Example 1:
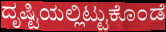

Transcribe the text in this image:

ದೃಷ್ಟಿಯಲ್ಲಿಟ್ಟುಕೊಂಡೆ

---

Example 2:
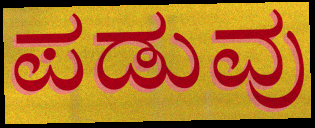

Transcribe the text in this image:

ಪಡುವು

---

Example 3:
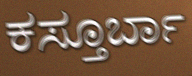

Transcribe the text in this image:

ಕಸ್ತೂರ್ಬಾ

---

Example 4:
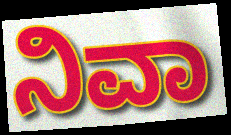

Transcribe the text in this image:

ನಿವಾ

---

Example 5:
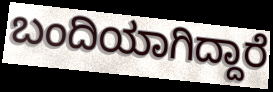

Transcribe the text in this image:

ಬಂದಿಯಾಗಿದ್ದಾರೆ